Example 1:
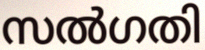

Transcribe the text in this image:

സൽഗതി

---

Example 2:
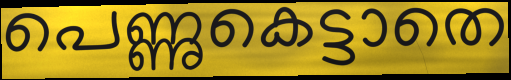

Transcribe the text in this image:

പെണ്ണുകെട്ടാതെ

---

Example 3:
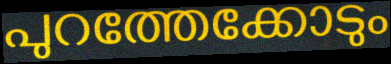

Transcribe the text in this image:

പുറത്തേക്കോടും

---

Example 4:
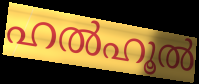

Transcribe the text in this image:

ഹൽഹൂൽ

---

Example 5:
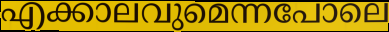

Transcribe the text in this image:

എക്കാലവുമെന്നപോലെ